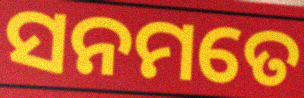
ସନମତେ